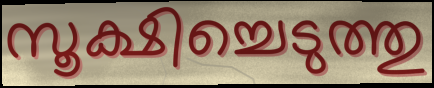
സൂക്ഷിച്ചെടുത്തു